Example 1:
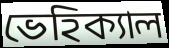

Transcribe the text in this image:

ভেহিক্যাল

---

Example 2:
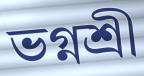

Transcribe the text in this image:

ভগ্নশ্রী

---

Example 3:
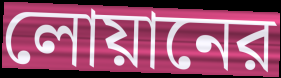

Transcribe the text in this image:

লোয়ানের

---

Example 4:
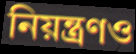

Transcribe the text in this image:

নিয়ন্ত্রণও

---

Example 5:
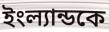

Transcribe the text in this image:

ইংল্যান্ডকে